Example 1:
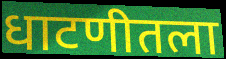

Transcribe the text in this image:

धाटणीतला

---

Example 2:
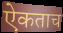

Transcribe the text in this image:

ऐकताच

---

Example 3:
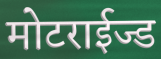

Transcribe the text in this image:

मोटराईज्ड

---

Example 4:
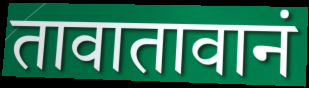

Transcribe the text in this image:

तावातावानं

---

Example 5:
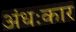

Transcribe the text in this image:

अंधःकार